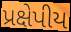
પ્રક્ષેપીય